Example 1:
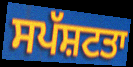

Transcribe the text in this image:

ਸਪੱਸ਼ਟਤਾ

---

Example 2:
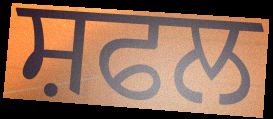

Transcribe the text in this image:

ਸ਼ਫਲ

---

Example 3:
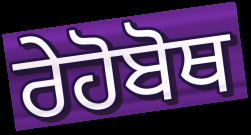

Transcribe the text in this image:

ਰੇਹੋਬੋਥ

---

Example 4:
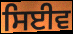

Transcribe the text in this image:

ਸਿਈਵ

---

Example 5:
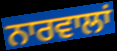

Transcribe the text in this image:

ਨਾਰਵਾਲਾਂ